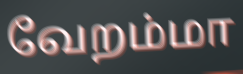
வேறம்மா